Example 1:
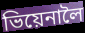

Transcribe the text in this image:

ভিয়েনালৈ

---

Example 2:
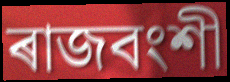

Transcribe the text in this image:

ৰাজবংশী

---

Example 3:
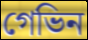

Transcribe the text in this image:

গেভিন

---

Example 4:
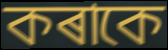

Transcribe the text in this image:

কৰাকে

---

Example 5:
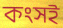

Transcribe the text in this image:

কংসই